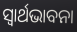
ସ୍ଵାର୍ଥଭାବନା